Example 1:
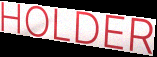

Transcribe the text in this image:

HOLDER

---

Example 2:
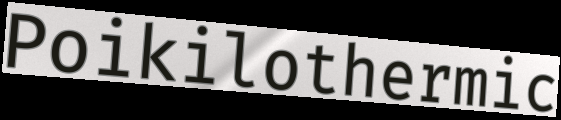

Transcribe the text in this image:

Poikilothermic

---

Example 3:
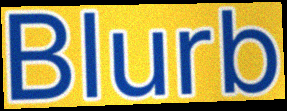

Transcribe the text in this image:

Blurb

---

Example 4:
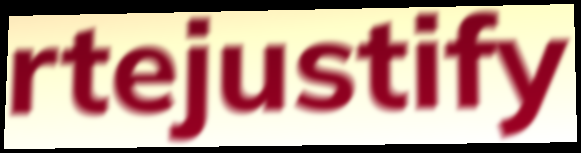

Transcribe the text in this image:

rtejustify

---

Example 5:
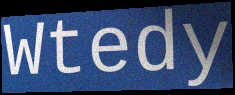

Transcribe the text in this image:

Wtedy